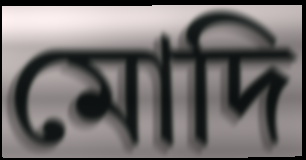
মোদি